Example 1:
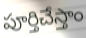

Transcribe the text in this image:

పూర్తిచేస్తాం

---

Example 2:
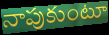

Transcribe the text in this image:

నాపుకుంటూ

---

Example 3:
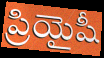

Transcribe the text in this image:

ప్రియైషీ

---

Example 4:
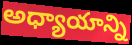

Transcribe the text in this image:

అధ్యాయాన్ని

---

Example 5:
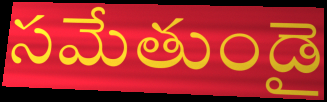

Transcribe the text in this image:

సమేతుండై